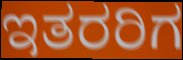
ಇತರರಿಗ